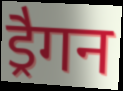
ड्रैगन